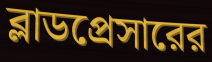
ব্লাডপ্রেসারের